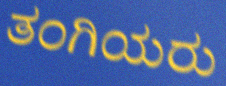
ತಂಗಿಯರು